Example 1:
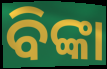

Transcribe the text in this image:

ବିଙ୍କା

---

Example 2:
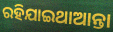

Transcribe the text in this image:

ରହିଯାଇଥାଆନ୍ତା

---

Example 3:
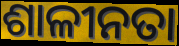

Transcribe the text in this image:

ଶାଳୀନତା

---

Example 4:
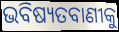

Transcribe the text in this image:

ଭବିଷ୍ୟତବାଣୀକୁ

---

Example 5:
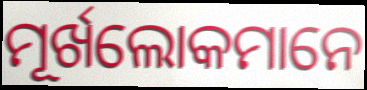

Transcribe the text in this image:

ମୂର୍ଖଲୋକମାନେ